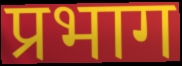
प्रभाग